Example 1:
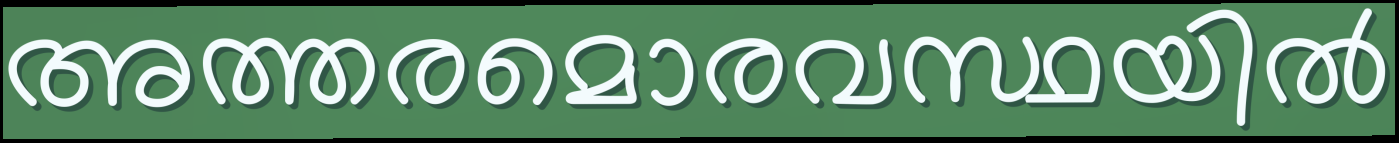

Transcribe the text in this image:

അത്തരമൊരവസ്ഥയിൽ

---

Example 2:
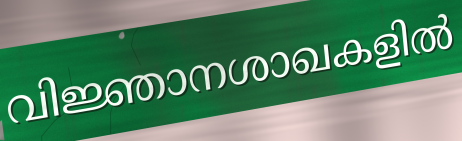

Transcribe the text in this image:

വിജ്ഞാനശാഖകളിൽ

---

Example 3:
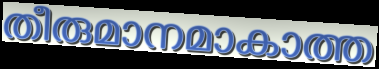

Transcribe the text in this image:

തീരുമാനമാകാത്ത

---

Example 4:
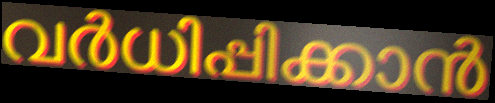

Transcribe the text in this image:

വർധിപ്പിക്കാൻ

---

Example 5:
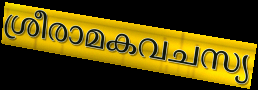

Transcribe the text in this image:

ശ്രീരാമകവചസ്യ